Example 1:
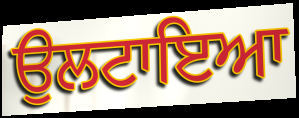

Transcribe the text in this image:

ਉਲਟਾਇਆ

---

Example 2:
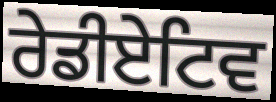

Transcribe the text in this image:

ਰੇਡੀਏਟਿਵ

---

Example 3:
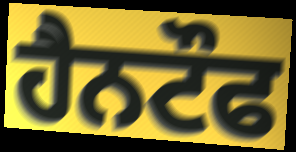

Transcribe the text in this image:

ਹੈਨਟੌਫ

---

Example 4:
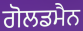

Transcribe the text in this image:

ਗੋਲਡਮੈਨ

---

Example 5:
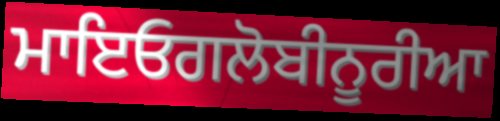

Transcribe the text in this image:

ਮਾਇਓਗਲੋਬੀਨੂਰੀਆ